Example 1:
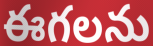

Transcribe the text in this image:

ఈగలను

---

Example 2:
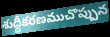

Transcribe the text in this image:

శుద్ధీకరణముచొప్పున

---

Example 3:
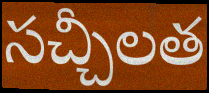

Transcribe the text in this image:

సచ్చీలత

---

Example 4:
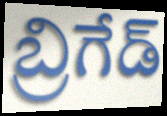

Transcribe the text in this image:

బ్రిగేడ్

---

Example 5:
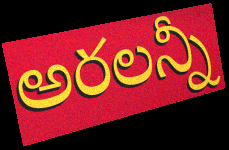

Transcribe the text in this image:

అరలన్నీ